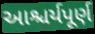
આશ્ચર્યપૂર્ણ